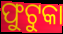
ଫୁଟୁକା